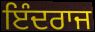
ਇੰਦਰਾਜ